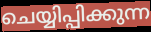
ചെയ്യിപ്പിക്കുന്ന